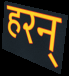
हरन्